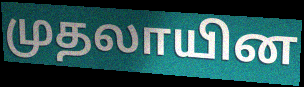
முதலாயின